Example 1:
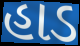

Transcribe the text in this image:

હાડ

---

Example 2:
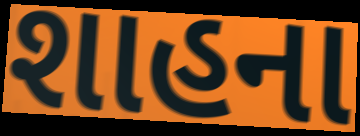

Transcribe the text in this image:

શાહના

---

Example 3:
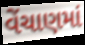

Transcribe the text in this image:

વેંચાણમાં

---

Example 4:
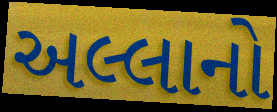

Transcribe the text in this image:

અલ્લાનો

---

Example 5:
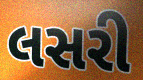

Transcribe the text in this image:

લસરી